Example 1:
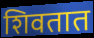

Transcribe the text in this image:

शिवतात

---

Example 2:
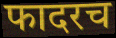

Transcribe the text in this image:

फादरच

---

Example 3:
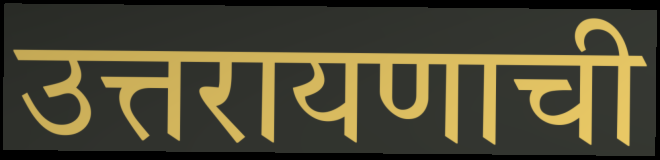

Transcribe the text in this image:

उत्तरायणाची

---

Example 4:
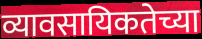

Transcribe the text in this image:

व्यावसायिकतेच्या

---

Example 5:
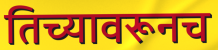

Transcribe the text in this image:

तिच्यावरूनच